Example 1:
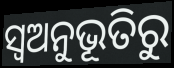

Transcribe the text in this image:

ସ୍ୱଅନୁଭୂତିରୁ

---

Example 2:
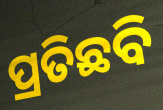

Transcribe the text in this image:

ପ୍ରତିଛବି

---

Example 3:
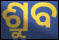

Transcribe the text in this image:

ଶ୍ରୁବ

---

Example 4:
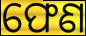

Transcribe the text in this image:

ଫେଣ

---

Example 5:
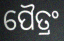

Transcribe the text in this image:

ପୈତ୍ରଂ